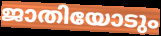
ജാതിയോടും